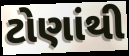
ટોણાંથી